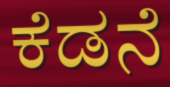
ಕೆಡನೆ